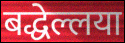
बद्धेल्लया